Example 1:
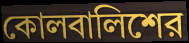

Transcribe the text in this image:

কোলবালিশের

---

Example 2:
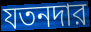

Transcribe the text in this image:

যতনদার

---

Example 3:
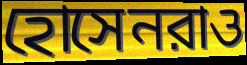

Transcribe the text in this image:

হোসেনরাও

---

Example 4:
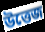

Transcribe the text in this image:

উত্তেজ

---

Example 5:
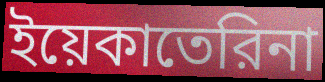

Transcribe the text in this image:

ইয়েকাতেরিনা